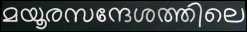
മയൂരസന്ദേശത്തിലെ